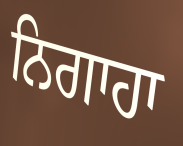
ਨਿਗਾਹਾ